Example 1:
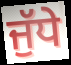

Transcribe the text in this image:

ਜੁੱਧੇ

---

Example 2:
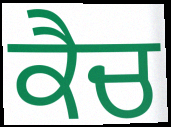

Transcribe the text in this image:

ਕੈਚ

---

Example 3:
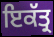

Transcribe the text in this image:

ਇਕੱਤ੍ਰ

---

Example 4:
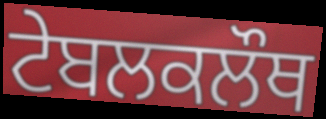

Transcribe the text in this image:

ਟੇਬਲਕਲੌਥ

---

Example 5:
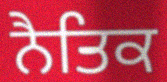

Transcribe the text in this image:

ਨੈਤਿਕ